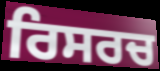
ਰਿਸਰਚ